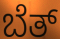
ಬೆತ್